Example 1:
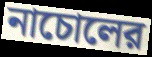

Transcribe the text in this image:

নাচোলের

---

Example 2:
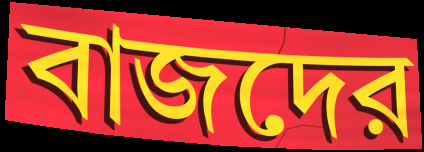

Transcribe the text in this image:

বাজদের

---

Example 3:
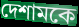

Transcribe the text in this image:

দেশামকে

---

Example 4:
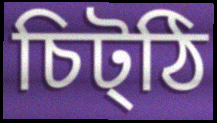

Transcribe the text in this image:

চিট্ঠি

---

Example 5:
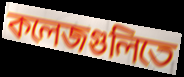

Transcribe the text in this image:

কলেজগুলিতে